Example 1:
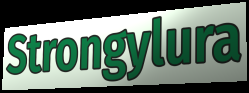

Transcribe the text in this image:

Strongylura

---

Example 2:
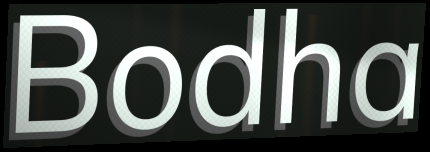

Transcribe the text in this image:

Bodha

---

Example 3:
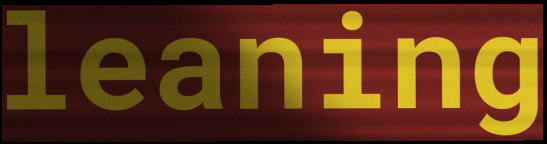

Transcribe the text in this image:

leaning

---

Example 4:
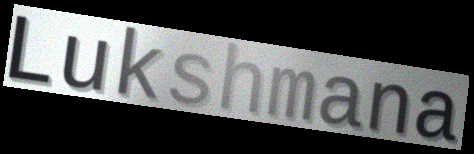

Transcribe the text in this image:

Lukshmana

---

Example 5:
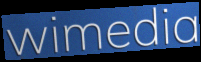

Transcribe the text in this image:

wimedia